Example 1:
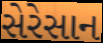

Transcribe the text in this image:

સેરેસાન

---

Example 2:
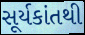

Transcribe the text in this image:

સૂર્યકાંતથી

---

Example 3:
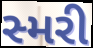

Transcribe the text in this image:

સ્મરી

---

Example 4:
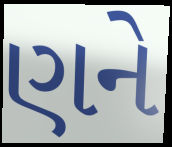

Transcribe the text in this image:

ણને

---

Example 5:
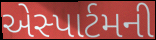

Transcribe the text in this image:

એસ્પાર્ટમની